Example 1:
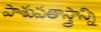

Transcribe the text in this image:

పాశుపతాస్త్రాన్ని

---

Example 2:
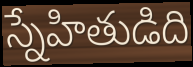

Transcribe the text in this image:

స్నేహితుడిది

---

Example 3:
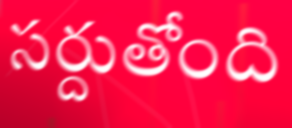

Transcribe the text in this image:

సర్దుతోంది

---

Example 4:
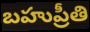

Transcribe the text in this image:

బహుప్రీతి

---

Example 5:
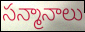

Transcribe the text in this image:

సన్మానాలు